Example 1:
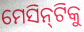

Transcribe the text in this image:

ମେସିନ୍‍ଟିକୁ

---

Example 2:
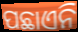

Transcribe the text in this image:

ପଛାଏନି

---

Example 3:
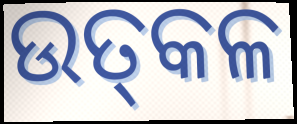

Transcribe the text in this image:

ଉତ୍‌କଳ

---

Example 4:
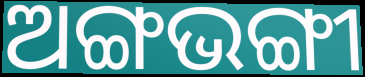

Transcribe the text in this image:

ଅଙ୍ଗଭଙ୍ଗୀ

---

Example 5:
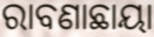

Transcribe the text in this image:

ରାବଣାଛାୟା